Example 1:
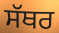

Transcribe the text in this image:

ਸੱਥਰ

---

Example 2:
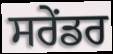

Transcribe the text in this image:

ਸਰੇਂਡਰ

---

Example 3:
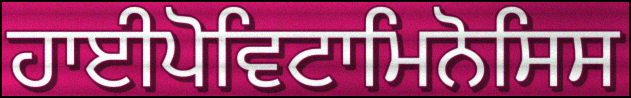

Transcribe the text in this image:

ਹਾਈਪੋਵਿਟਾਮਿਨੋਸਿਸ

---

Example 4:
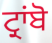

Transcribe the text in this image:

ਟ੍ਰਾਂਬੋ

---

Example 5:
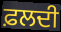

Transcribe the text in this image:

ਫ਼ਲਦੀ